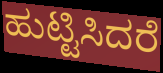
ಹುಟ್ಟಿಸಿದರೆ